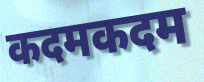
कदमकदम